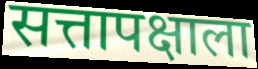
सत्तापक्षाला